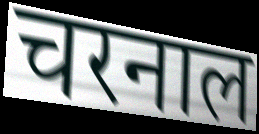
चरनाल